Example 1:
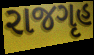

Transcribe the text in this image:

રાજગૃહ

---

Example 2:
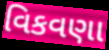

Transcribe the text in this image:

વિકવણા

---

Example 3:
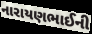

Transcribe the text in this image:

નારાયણભાઈની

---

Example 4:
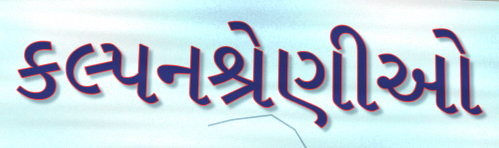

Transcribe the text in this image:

કલ્પનશ્રેણીઓ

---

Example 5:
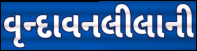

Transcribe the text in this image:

વૃન્દાવનલીલાની